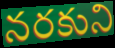
నరకుని